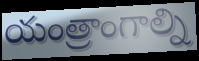
యంత్రాంగాల్ని